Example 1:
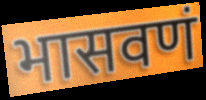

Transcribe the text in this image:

भासवणं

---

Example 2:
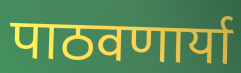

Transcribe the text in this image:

पाठवणार्या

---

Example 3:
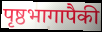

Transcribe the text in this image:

पृष्ठभागापैकी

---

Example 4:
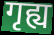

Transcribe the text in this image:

गृह्य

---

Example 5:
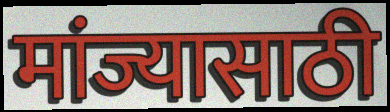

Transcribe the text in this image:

मांज्यासाठी